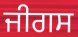
ਜੀਗਸ